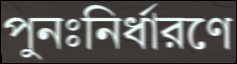
পুনঃনির্ধারণে